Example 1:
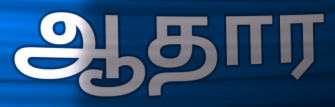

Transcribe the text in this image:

ஆதார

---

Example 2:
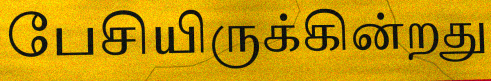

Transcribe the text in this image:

பேசியிருக்கின்றது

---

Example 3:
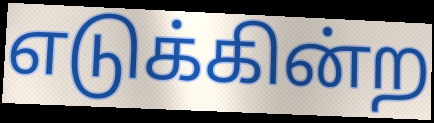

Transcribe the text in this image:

எடுக்கின்ற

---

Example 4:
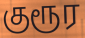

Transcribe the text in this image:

குரூர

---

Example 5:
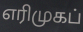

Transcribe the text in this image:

எரிமுகப்